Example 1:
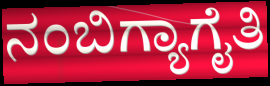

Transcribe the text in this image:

ನಂಬಿಗ್ಯಾಗೈತಿ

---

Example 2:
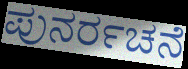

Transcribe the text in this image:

ಪುನರ್ರಚನೆ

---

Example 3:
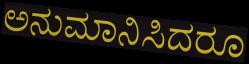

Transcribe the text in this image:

ಅನುಮಾನಿಸಿದರೂ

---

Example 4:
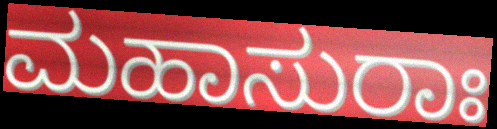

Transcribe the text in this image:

ಮಹಾಸುರಾಃ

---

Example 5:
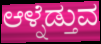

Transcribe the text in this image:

ಆಳ್ನೆಡ್ತುವ